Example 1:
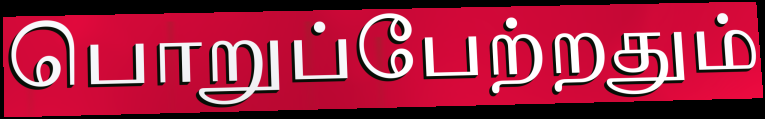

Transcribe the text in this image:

பொறுப்பேற்றதும்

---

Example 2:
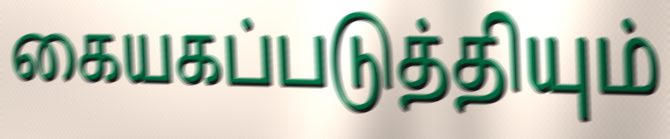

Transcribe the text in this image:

கையகப்படுத்தியும்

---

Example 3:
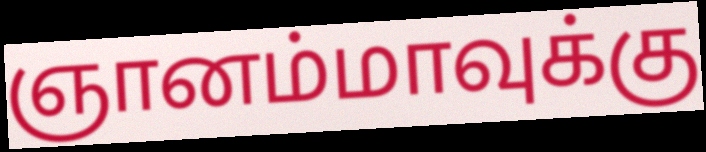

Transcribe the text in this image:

ஞானம்மாவுக்கு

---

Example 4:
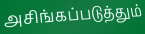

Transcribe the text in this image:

அசிங்கப்படுத்தும்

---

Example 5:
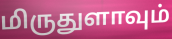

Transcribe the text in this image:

மிருதுளாவும்